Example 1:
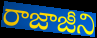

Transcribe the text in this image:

రాజాజీని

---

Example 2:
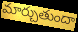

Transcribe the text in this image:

మార్చుతుందా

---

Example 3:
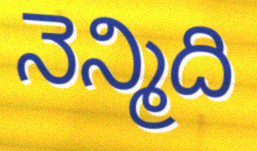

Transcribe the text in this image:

నెన్మిది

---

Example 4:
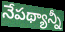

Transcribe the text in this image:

నేపథ్యాన్నీ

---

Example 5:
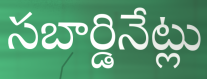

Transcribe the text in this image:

సబార్డినేట్లు